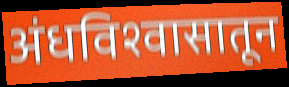
अंधविश्वासातून